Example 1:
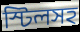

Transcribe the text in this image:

স্টিলসহ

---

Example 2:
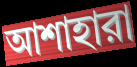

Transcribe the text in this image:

আশাহারা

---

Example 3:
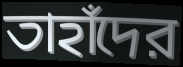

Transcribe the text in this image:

তাহাঁদের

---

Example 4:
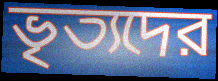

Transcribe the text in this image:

ভৃত্যদের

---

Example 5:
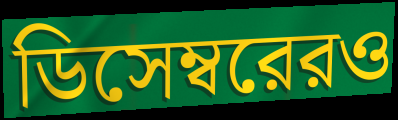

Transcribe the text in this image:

ডিসেম্বরেরও